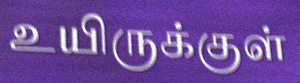
உயிருக்குள்